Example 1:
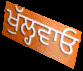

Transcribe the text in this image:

ਖੁੱਲ੍ਹਵਾਓ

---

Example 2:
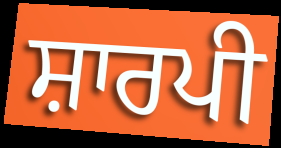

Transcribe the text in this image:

ਸ਼ਾਰਪੀ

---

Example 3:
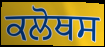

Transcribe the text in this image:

ਕਲੋਥਸ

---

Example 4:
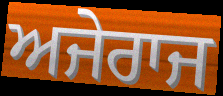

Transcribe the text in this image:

ਅਜੇਰਾਜ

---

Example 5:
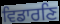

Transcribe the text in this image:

ਵਿਡਾਰਣਿ